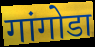
गांगोडा